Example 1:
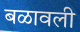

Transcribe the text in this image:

बळावली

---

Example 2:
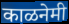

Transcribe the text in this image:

काळनेमी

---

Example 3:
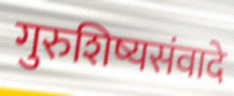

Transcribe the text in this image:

गुरुशिष्यसंवादे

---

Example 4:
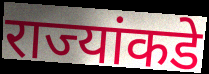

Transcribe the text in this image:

राज्यांकडे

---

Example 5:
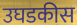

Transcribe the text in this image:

उघडकीस